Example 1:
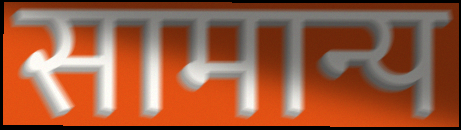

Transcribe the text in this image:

सामान्य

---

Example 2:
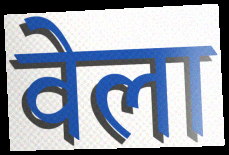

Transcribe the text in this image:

वेला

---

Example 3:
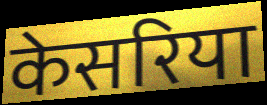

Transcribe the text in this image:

केसरिया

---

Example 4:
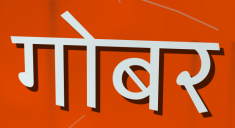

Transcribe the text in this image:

गोबर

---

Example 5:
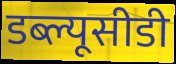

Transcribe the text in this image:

डब्ल्यूसीडी